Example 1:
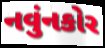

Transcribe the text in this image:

નવુંનકોર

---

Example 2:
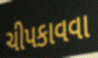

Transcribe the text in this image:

ચીપકાવવા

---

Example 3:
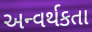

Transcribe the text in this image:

અન્વર્થકતા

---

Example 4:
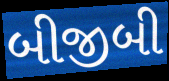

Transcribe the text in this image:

બીજીબી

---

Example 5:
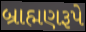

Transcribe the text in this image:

બ્રાહ્મણરૂપે